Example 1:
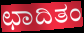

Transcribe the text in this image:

ಛಾದಿತಂ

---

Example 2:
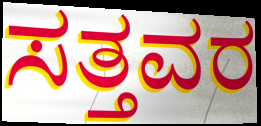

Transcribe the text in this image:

ಸತ್ತವರ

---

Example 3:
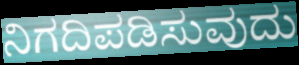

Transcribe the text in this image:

ನಿಗದಿಪಡಿಸುವುದು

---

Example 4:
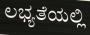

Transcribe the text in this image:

ಲಭ್ಯತೆಯಲ್ಲಿ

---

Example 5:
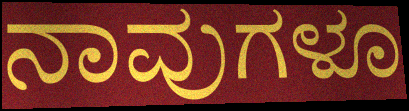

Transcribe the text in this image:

ನಾವುಗಳೂ